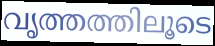
വൃത്തത്തിലൂടെ